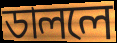
ডাললে